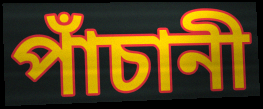
পাঁচানী